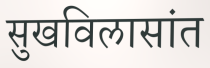
सुखविलासांत